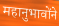
महानुभावोंने